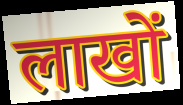
लाखों